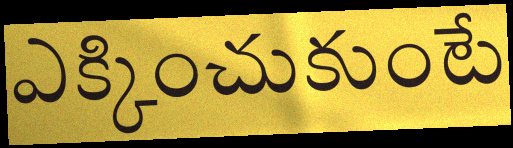
ఎక్కించుకుంటే